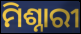
ମିଶ୍ନାରୀ